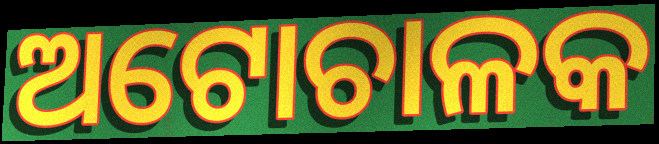
ଅଟୋଚାଳକ